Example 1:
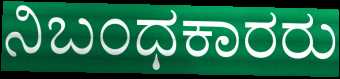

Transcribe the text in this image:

ನಿಬಂಧಕಾರರು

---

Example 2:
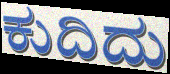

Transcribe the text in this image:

ಕುದಿದು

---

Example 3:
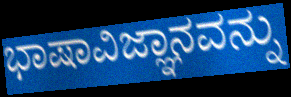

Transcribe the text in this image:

ಭಾಷಾವಿಜ್ಞಾನವನ್ನು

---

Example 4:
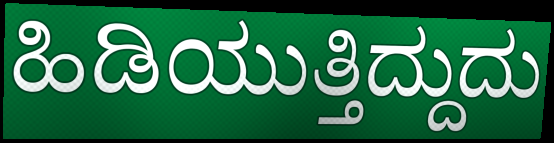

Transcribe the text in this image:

ಹಿಡಿಯುತ್ತಿದ್ದುದು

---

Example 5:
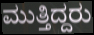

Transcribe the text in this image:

ಮುತ್ತಿದ್ದರು